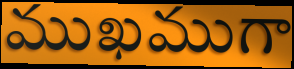
ముఖముగా